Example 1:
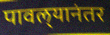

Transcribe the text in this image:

पावल्यानंतर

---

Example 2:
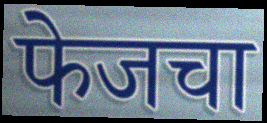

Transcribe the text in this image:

फेजचा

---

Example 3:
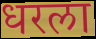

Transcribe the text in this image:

धरला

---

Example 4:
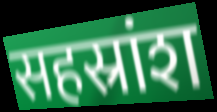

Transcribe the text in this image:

सहस्रांश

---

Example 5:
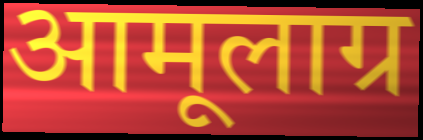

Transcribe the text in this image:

आमूलाग्र